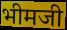
भीमजी